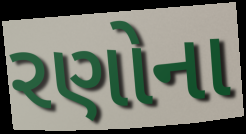
રણોના